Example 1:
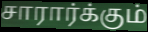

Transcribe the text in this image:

சாரார்க்கும்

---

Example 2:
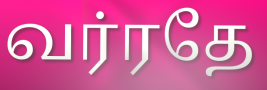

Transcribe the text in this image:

வர்ரதே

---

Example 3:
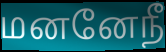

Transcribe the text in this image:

மனனேநீ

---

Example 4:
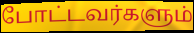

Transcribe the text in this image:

போட்டவர்களும்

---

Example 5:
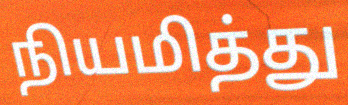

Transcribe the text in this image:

நியமித்து